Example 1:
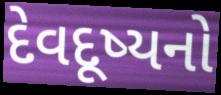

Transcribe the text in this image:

દેવદૂષ્યનો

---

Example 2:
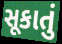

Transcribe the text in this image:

સૂકાતું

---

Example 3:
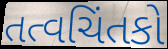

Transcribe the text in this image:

તત્વચિંતકો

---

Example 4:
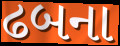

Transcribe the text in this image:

ઢબના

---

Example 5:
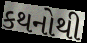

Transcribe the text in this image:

કથનોથી